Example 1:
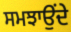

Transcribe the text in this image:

ਸਮਝਾਉਂਦੇ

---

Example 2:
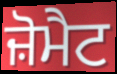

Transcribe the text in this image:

ਜ਼ੋਮੈਟ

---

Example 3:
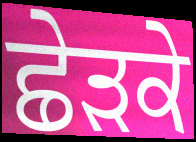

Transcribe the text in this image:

ਛੇੜਕੇ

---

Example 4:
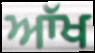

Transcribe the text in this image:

ਆੱਖ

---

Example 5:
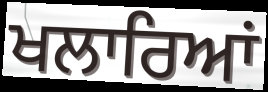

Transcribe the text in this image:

ਖਲਾਰਿਆਂ